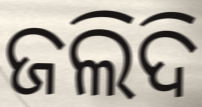
ଜଲିଦି